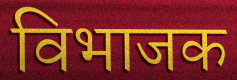
विभाजक